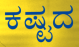
ಕಷ್ಟದ